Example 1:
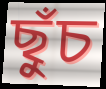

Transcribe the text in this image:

ছুঁচ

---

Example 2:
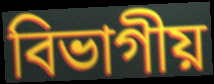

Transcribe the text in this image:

বিভাগীয়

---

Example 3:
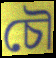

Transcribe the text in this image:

চৌ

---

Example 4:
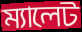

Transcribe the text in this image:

ম্যালেট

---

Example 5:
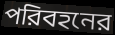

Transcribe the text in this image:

পরিবহনের